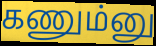
கணும்னு